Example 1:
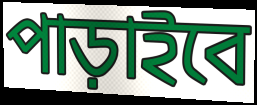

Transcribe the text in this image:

পাড়াইবে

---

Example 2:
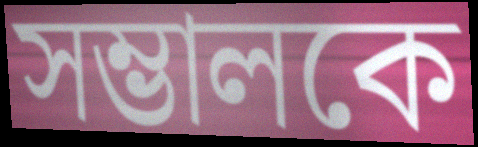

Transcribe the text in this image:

সম্ভালকে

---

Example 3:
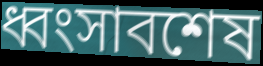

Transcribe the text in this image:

ধ্বংসাবশেষ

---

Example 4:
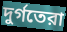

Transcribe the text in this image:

দুর্গতেরা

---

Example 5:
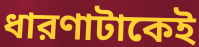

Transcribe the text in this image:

ধারণাটাকেই